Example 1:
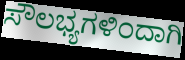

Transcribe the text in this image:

ಸೌಲಭ್ಯಗಳಿಂದಾಗಿ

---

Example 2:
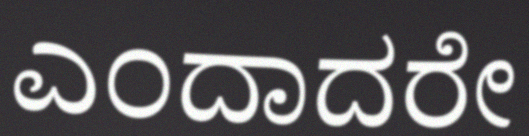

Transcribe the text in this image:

ಎಂದಾದರೇ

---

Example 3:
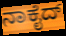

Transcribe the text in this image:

ನಾಕೈದ್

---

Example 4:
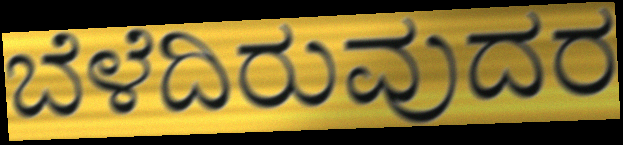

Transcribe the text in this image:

ಬೆಳೆದಿರುವುದರ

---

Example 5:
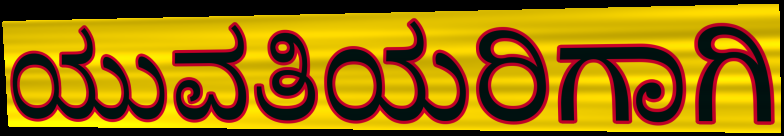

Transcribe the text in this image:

ಯುವತಿಯರಿಗಾಗಿ